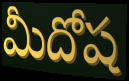
మీదోష